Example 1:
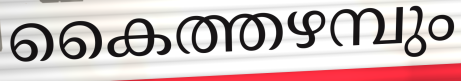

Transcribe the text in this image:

കൈത്തഴമ്പും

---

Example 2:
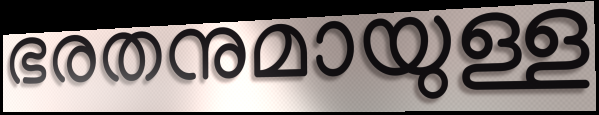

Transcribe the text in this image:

ഭരതനുമായുള്ള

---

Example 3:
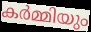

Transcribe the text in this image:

കർമ്മിയും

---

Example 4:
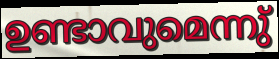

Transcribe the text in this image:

ഉണ്ടാവുമെന്നു്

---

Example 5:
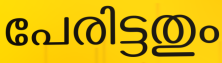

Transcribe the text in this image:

പേരിട്ടതും